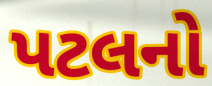
પટલનો